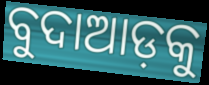
ବୁଦାଆଡ଼କୁ